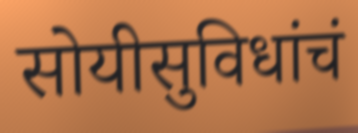
सोयीसुविधांचं